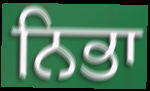
ਨਿਭਾ